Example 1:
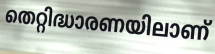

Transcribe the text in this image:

തെറ്റിദ്ധാരണയിലാണ്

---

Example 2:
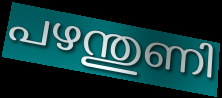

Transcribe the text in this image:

പഴന്തുണി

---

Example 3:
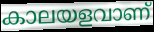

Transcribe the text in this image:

കാലയളവാണ്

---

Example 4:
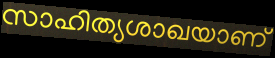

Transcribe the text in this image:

സാഹിത്യശാഖയാണ്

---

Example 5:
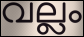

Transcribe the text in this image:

വല്ലം